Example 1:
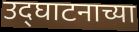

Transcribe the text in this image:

उद्घाटनाच्या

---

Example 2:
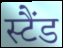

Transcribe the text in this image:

स्टैंड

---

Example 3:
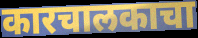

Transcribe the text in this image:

कारचालकाचा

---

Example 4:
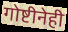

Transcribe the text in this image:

गोष्टीनेही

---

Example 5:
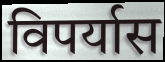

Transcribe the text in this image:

विपर्यास